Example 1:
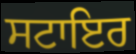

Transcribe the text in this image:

ਸਟਾਇਰ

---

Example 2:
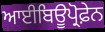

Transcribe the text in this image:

ਆਈਬਿਊਪ੍ਰੋਫ਼ੇਨ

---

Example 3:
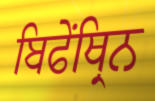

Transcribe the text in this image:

ਬਿਫੇਂਥ੍ਰਿਨ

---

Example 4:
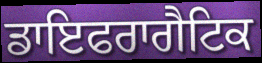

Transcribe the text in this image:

ਡਾਇਫਰਾਗੈਟਿਕ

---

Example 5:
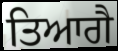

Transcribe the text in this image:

ਤਿਆਗੈ